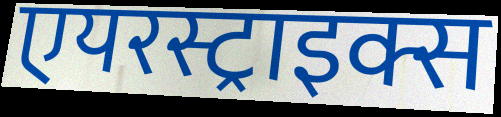
एयरस्ट्राइक्स